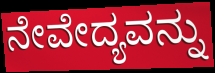
ನೇವೇದ್ಯವನ್ನು